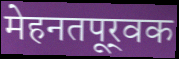
मेहनतपूर्वक